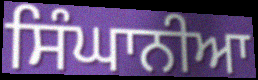
ਸਿੰਘਾਨੀਆ